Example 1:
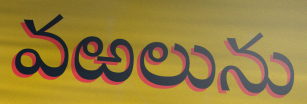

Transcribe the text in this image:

వఱలును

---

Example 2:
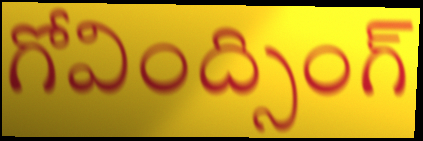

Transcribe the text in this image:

గోవింద్సింగ్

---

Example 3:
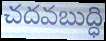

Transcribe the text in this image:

చదవబుద్ధి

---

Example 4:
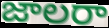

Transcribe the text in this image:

జాలరా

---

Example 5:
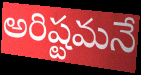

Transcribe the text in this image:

అరిష్టమనే